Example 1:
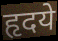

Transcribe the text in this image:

हृदये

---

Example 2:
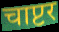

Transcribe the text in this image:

चाप्टर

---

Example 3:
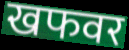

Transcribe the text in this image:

खफवर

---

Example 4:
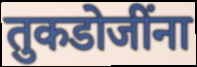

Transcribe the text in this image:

तुकडोजींना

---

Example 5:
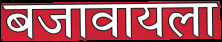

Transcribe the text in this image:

बजावायला